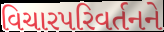
વિચારપરિવર્તનને